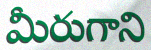
మీరుగాని